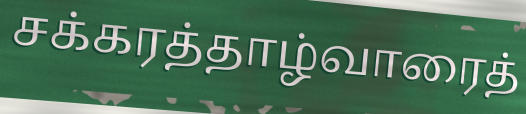
சக்கரத்தாழ்வாரைத்